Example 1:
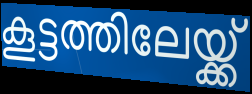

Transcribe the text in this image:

കൂട്ടത്തിലേയ്ക്ക്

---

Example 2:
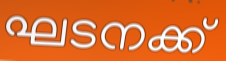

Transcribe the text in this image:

ഘടനക്ക്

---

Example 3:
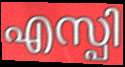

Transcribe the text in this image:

എസ്പി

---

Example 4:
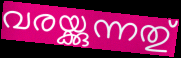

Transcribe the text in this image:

വരയ്ക്കുന്നതു്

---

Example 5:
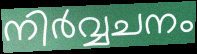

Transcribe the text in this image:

നിർവ്വചനം